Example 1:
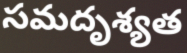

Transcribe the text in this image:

సమదృశ్యత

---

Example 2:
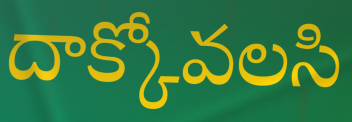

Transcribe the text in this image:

దాక్కోవలసి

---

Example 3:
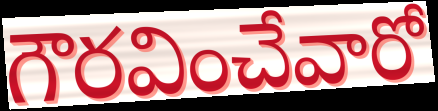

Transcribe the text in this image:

గౌరవించేవారో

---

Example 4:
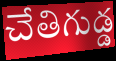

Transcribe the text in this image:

చేతిగుడ్డ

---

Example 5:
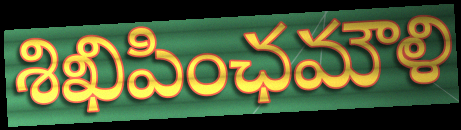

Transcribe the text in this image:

శిఖిపింఛమౌళి